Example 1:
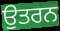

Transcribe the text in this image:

ਉਤਰਨ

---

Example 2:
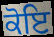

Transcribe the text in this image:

ਕੋਇ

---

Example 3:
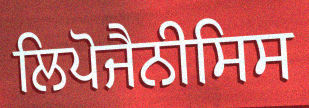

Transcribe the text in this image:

ਲਿਪੋਜੈਨੀਸਿਸ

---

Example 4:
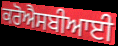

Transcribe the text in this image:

ਕਰੋਐਸਬੀਆਈ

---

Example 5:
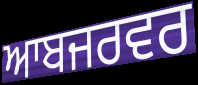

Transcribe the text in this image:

ਆਬਜਰਵਰ